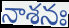
నాశనః